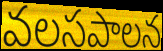
వలసపాలన